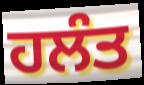
ਹਲੰਤ